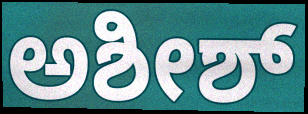
ಅಶೀಶ್